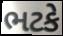
ભટકે